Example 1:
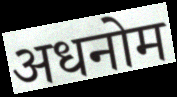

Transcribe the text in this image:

अधनोम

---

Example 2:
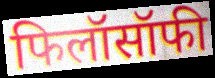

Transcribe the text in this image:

फिलॉसॉफी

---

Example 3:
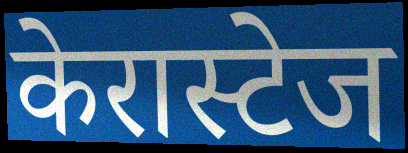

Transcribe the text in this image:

केरास्टेज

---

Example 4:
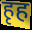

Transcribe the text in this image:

हृह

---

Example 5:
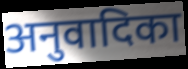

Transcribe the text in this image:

अनुवादिका